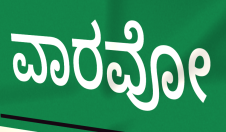
ವಾರವೋ